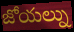
జోయల్ను